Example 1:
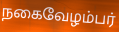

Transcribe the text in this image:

நகைவேழம்பர்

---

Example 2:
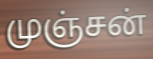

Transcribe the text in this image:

முஞ்சன்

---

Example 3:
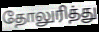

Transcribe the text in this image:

தோலுரித்து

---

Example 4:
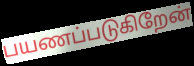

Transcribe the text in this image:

பயணப்படுகிறேன்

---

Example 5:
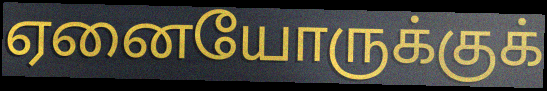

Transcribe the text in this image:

ஏனையோருக்குக்